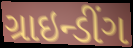
ગ્રાઇન્ડીંગ